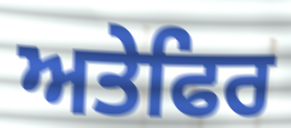
ਅਤੇਫਿਰ